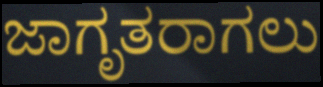
ಜಾಗೃತರಾಗಲು